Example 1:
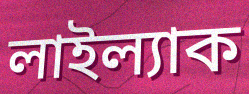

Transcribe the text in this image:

লাইল্যাক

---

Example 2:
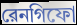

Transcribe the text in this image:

রেনগিফো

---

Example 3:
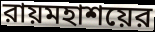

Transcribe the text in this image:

রায়মহাশয়ের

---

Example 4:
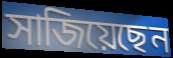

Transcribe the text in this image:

সাজিয়েছেন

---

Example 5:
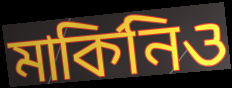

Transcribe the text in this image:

মার্কিনিও